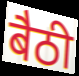
बैठी